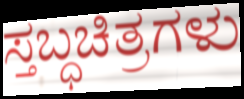
ಸ್ತಬ್ಧಚಿತ್ರಗಳು